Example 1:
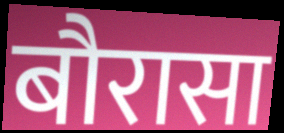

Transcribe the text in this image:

बौरासा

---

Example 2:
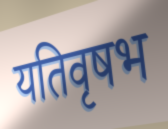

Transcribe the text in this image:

यतिवृषभ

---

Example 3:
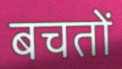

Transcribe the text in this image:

बचतों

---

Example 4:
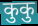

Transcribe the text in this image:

कुकु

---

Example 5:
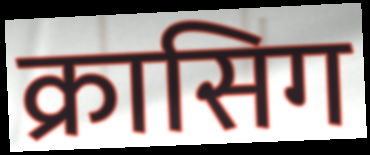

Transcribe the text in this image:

क्रासिग